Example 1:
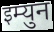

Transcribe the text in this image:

इम्युन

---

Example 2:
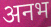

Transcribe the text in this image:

अनभ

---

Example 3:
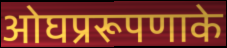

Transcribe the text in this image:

ओघप्ररूपणाके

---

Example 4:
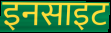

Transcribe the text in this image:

इनसाइट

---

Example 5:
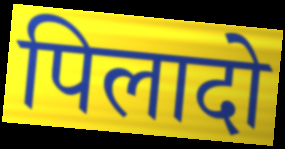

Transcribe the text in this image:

पिलादो